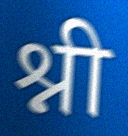
श्नी